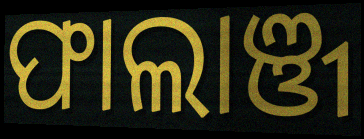
ଫାଲାଞ୍ଜ